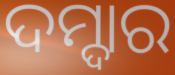
ଦମ୍ଦାର